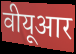
वीयूआर